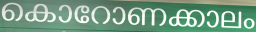
കൊറോണക്കാലം